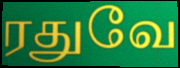
ரதுவே